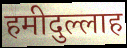
हमीदुल्लाह